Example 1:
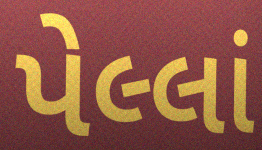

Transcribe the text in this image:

પેલ્લાં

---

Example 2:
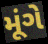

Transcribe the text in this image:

મૂંગે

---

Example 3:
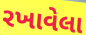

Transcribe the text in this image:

રખાવેલા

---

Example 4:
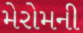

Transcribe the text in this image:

મેરોમની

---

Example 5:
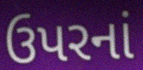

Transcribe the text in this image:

ઉપરનાં